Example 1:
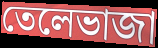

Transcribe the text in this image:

তেলেভাজা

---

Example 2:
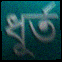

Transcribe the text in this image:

ধূর্ত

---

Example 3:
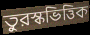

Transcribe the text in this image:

তুরস্কভিত্তিক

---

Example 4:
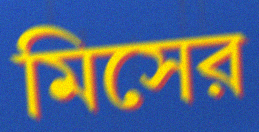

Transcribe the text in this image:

মিসের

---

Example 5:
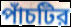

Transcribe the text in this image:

পাঁচটির